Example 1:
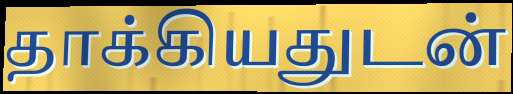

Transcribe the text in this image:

தாக்கியதுடன்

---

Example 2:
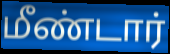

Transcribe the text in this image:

மீண்டார்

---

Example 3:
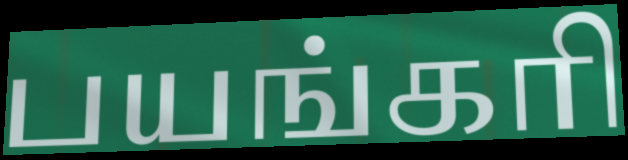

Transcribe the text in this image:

பயங்கரி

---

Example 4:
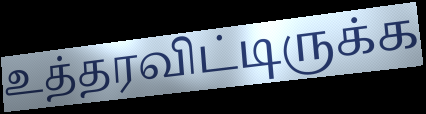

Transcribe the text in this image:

உத்தரவிட்டிருக்க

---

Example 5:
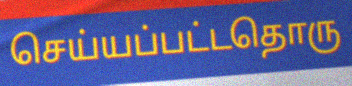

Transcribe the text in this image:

செய்யப்பட்டதொரு